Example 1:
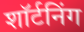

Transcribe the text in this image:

शॉर्टनिंग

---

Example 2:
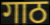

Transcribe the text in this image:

गाठ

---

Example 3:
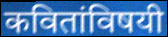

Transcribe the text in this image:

कवितांविषयी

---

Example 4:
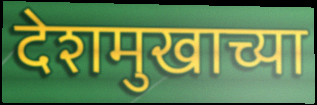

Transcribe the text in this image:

देशमुखाच्या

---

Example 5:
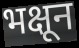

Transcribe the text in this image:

भक्षून